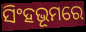
ସିଂହଭୂମରେ